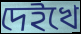
দেইখে